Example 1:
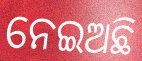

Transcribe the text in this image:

ନେଇଅଛି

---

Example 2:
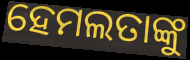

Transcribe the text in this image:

ହେମଲତାଙ୍କୁ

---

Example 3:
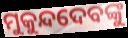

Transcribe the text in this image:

ମୁକୁନ୍ଦଦେବଙ୍କୁ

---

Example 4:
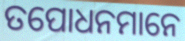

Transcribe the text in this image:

ତପୋଧନମାନେ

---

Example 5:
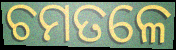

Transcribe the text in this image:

ଚମତଳେ